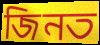
জিনত